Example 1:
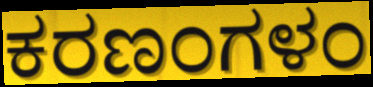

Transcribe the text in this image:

ಕರಣಂಗಳಂ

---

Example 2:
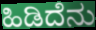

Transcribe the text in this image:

ಹಿಡಿದೆನು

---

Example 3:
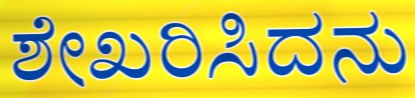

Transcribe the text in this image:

ಶೇಖರಿಸಿದನು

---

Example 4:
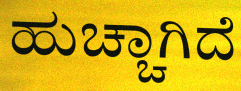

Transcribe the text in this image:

ಹುಚ್ಚಾಗಿದೆ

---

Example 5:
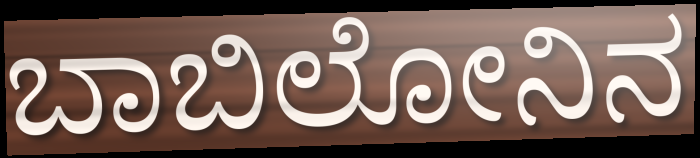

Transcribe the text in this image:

ಬಾಬಿಲೋನಿನ